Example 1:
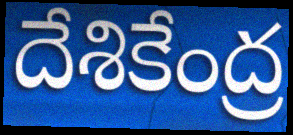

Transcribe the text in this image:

దేశికేంద్ర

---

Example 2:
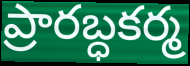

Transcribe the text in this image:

ప్రారబ్ధకర్మ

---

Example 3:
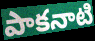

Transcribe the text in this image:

పాకనాటి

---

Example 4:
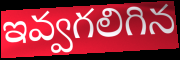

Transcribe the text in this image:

ఇవ్వగలిగిన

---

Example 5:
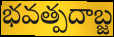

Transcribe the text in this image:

భవత్పదాబ్జ